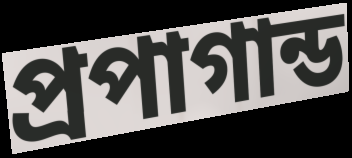
প্রপাগান্ড